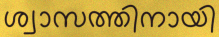
ശ്വാസത്തിനായി